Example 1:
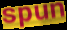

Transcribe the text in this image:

spun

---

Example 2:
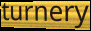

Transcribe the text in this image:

turnery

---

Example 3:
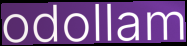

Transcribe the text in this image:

odollam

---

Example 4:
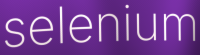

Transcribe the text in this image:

selenium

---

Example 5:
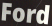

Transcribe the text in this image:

Ford